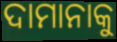
ଦାମାନାକୁ